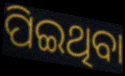
ପିଇଥିବା